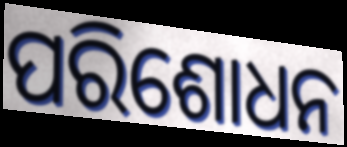
ପରିଶୋଧନ